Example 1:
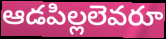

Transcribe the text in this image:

ఆడపిల్లలెవరూ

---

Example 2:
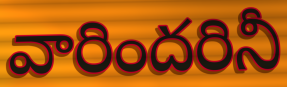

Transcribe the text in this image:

వారిందరినీ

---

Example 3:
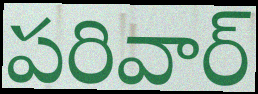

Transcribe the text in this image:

పరివార్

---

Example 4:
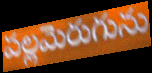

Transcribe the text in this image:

పల్లమెరుగును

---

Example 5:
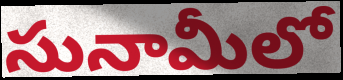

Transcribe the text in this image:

సునామీలో